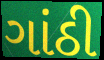
ગાંઠી